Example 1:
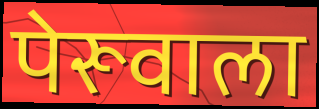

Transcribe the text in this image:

पेरूवाला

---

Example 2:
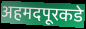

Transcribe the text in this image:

अहमदपूरकडे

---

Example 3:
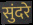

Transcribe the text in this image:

सुंदरे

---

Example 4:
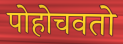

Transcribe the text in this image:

पोहोचवतो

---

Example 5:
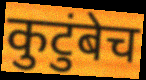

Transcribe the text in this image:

कुटुंबेच